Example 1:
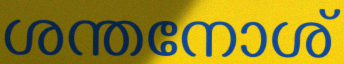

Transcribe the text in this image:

ശന്തനോശ്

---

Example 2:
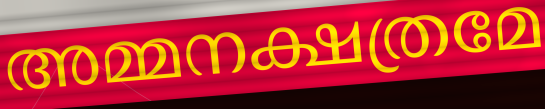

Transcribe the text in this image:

അമ്മനക്ഷത്രമേ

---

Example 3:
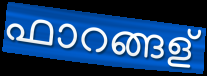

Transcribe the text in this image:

ഫാറങ്ങള്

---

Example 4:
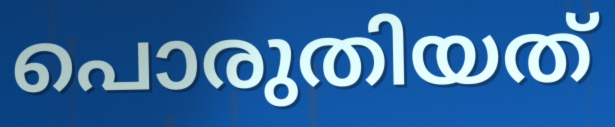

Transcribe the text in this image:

പൊരുതിയത്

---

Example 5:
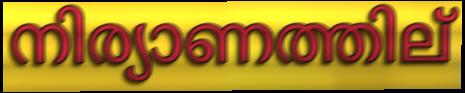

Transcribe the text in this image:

നിര്യാണത്തില്